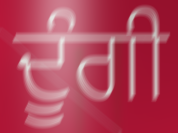
ਦੂੰਗੀ